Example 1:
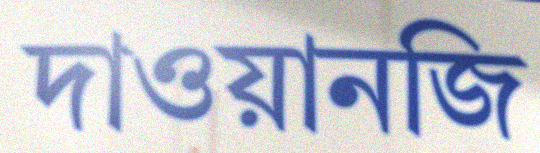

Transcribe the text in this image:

দাওয়ানজি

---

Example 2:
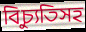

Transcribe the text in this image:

বিচ্যুতিসহ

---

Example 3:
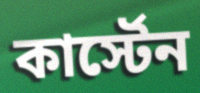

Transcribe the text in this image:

কার্স্টেন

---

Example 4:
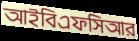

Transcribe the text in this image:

আইবিএফসিআর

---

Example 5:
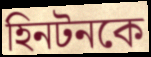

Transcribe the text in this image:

হিনটনকে